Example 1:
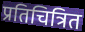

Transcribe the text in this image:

प्रतिचित्रित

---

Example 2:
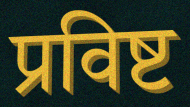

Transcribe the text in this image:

प्रविष्ट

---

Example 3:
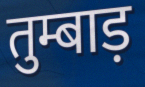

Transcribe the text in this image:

तुम्बाड़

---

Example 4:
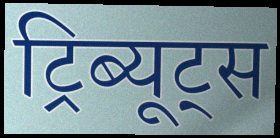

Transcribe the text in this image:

ट्रिब्यूट्स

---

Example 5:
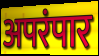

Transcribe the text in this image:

अपरंपार